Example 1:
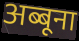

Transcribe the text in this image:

अब्बूना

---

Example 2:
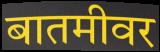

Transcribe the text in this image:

बातमीवर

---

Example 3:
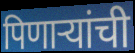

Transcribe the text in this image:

पिणाऱ्यांची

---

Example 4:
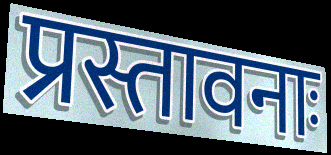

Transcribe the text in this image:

प्रस्तावनाः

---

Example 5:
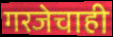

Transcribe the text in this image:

गरजेचाही